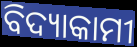
ବିଦ୍ୟାକାମୀ